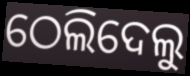
ଠେଲିଦେଲୁ